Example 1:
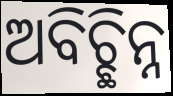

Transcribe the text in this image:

ଅବିଚ୍ଛିନ୍ନ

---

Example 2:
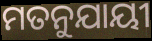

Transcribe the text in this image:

ମତନୁଯାୟୀ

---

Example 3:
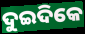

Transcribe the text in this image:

ଦୁଇଦିକେ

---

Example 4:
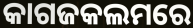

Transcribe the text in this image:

କାଗଜକଲମରେ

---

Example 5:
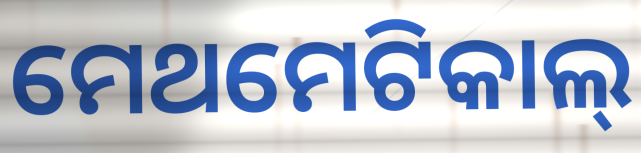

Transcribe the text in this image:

ମେଥମେଟିକାଲ୍